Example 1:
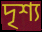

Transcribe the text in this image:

দৃশ্য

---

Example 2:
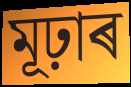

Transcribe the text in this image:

মূঢ়াৰ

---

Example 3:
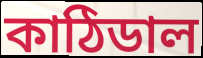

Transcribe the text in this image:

কাঠিডাল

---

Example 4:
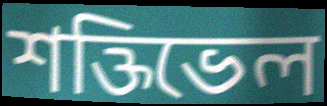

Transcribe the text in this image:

শক্তিভেল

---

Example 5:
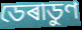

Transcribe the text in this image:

ডেৰাডুণ